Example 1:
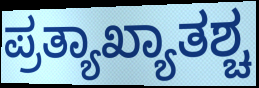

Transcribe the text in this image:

ಪ್ರತ್ಯಾಖ್ಯಾತಶ್ಚ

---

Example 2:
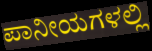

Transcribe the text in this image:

ಪಾನೀಯಗಳಲ್ಲಿ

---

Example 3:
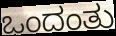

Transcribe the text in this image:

ಒಂದಂತು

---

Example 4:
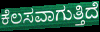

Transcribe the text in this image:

ಕೆಲಸವಾಗುತ್ತಿದೆ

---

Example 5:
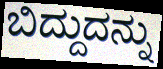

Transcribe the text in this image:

ಬಿದ್ದುದನ್ನು